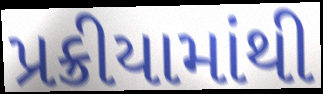
પ્રક્રીયામાંથી